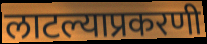
लाटल्याप्रकरणी